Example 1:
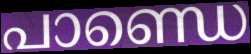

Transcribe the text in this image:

പാണ്ഡെ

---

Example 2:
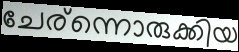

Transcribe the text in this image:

ചേര്ന്നൊരുക്കിയ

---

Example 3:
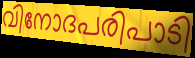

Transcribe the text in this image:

വിനോദപരിപാടി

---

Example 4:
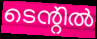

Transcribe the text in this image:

ടെന്റിൽ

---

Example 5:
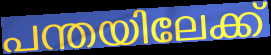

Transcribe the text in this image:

പന്തയിലേക്ക്